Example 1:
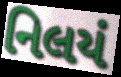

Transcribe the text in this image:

નિલયં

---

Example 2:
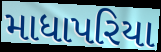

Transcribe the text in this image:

માધાપરિયા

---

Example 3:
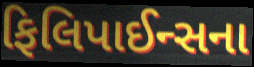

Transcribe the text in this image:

ફિલિપાઈન્સના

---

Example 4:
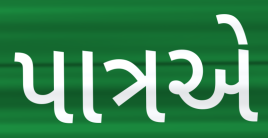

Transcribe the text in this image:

પાત્રએ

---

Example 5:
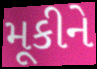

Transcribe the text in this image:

મૂકીને